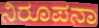
ನಿರೂಪನಾ